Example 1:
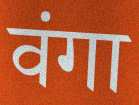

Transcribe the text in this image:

वंगा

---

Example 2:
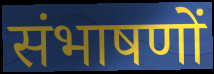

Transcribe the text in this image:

संभाषणों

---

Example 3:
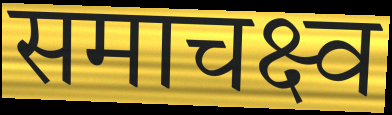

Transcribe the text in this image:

समाचक्ष्व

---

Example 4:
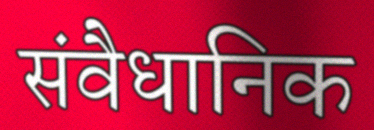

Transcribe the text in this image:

संवैधानिक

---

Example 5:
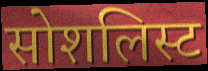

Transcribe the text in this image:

सोशलिस्ट